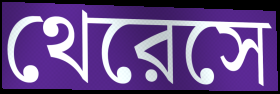
থেরেসে